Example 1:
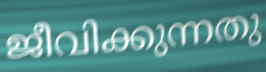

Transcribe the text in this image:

ജീവിക്കുന്നതു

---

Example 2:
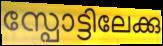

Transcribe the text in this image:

സ്പോട്ടിലേക്കു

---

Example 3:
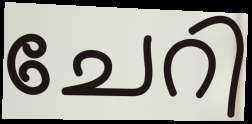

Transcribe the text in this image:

ചേറി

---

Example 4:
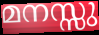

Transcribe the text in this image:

മനസ്സു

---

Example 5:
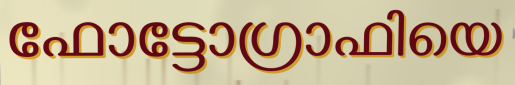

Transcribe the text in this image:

ഫോട്ടോഗ്രാഫിയെ